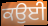
ਕਉਈ